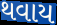
થવાય